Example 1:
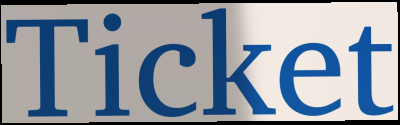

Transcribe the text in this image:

Ticket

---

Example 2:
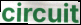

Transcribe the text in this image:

circuit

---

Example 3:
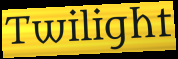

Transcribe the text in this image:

Twilight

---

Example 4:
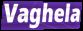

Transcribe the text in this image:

Vaghela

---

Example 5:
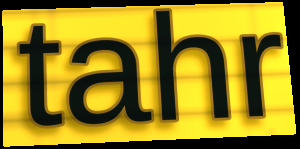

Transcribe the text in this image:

tahr